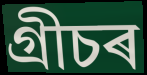
গ্ৰীচৰ